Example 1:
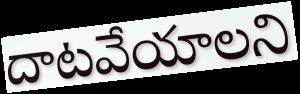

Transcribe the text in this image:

దాటవేయాలని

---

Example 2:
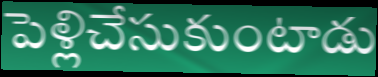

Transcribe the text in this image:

పెళ్లిచేసుకుంటాడు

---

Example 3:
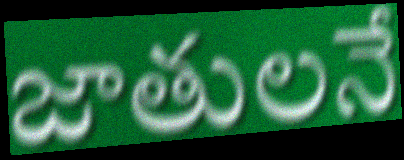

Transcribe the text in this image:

జాతులనే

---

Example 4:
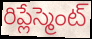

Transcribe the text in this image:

రిప్లేస్మెంట్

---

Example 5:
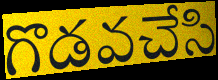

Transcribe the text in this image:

గొడవచేసి